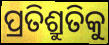
ପ୍ରତିଶ୍ରୁତିକୁ